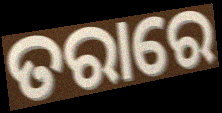
ତରାରେ